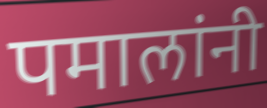
पमालांनी